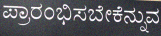
ಪ್ರಾರಂಭಿಸಬೇಕೆನ್ನುವ